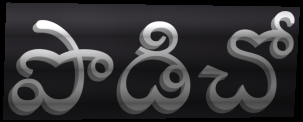
పొడిచో